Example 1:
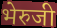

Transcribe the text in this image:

भेरुजी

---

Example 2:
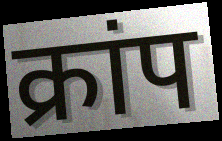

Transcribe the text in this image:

क्रांप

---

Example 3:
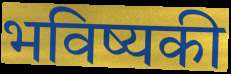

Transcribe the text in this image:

भविष्यकी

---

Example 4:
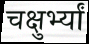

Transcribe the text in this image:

चक्षुर्भ्यां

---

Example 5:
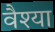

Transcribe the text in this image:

वैश्या